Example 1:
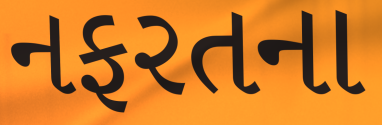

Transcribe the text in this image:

નફરતના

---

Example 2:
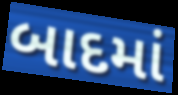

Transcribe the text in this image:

બાદમાં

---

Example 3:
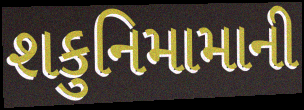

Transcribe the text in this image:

શકુનિમામાની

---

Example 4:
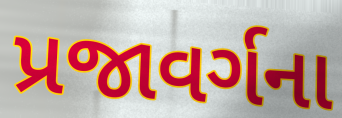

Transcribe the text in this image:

પ્રજાવર્ગના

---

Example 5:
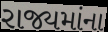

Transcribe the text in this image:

રાજ્યમાંના